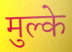
मुल्के